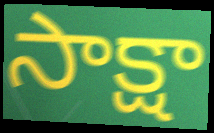
సాక్షా